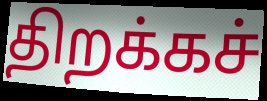
திறக்கச்